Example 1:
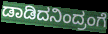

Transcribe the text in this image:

ಡಾಡಿದನಿಂದ್ರಂಗೆ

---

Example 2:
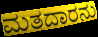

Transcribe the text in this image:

ಮತದಾರನು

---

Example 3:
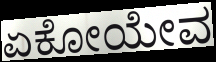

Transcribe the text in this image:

ಏಕೋಯೇವ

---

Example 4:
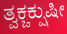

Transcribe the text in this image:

ತ್ವಕ್ಚಕ್ಷುಷೀ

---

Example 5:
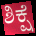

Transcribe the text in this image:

ಶಿಕ್ಷೆ